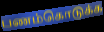
பணம்கொடுக்க